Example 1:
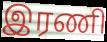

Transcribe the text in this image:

இரணி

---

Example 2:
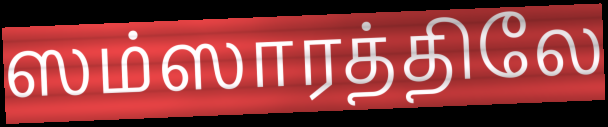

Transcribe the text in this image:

ஸம்ஸாரத்திலே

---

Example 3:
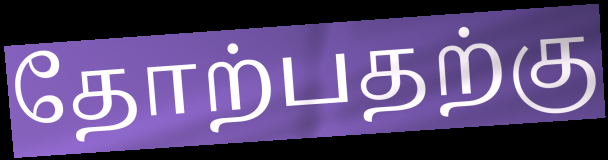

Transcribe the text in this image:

தோற்பதற்கு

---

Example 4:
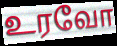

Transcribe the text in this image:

உரவோ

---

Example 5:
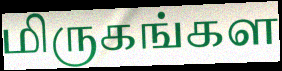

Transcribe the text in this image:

மிருகங்கள